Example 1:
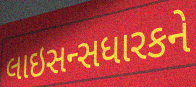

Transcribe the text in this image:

લાઇસન્સધારકને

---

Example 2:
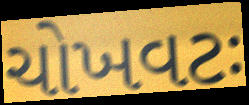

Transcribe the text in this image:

ચોખવટઃ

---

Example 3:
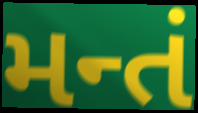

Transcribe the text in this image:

મન્તં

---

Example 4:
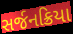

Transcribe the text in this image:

સર્જનક્રિયા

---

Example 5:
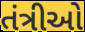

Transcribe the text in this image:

તંત્રીઓ